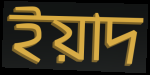
ইয়াদ